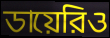
ডায়েরিও